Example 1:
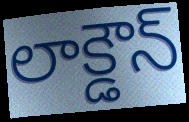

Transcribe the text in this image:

లాక్డౌన్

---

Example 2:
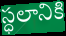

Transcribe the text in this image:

స్ధలానికి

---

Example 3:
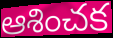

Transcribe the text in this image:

ఆశించక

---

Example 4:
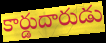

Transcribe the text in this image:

కార్డుదారుడు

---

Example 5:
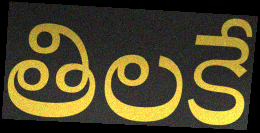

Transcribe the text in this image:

తిలకే